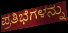
ಪ್ರತಿಭೆಗಳನ್ನು